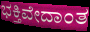
ಭಕ್ತಿವೇದಾಂತ